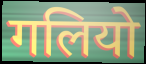
गलियो